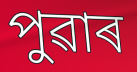
পুৱাৰ